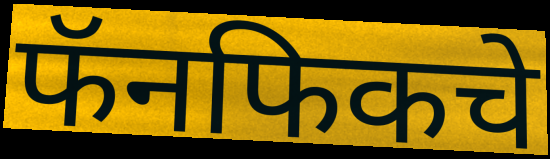
फॅनफिकचे